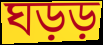
ঘড়ড়